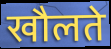
खौलते